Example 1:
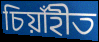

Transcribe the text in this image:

চিয়াঁহীত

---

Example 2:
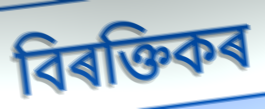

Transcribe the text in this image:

বিৰক্তিকৰ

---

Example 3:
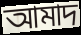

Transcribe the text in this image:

আমাদ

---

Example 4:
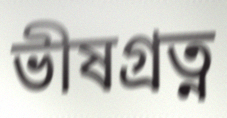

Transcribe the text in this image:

ভীষগ্ৰত্ন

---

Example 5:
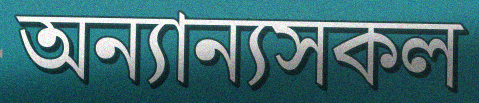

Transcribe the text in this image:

অন্যান্যসকল